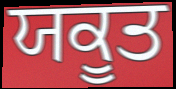
ਯਕੂਤ